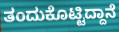
ತಂದುಕೊಟ್ಟಿದ್ದಾನೆ